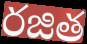
రజిత